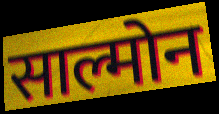
साल्मोन